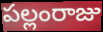
పల్లంరాజు